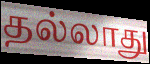
தல்லாது